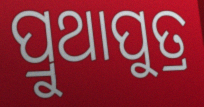
ପ୍ରୁଥାପୁତ୍ର